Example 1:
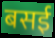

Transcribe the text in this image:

बसई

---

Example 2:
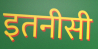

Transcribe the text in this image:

इतनीसी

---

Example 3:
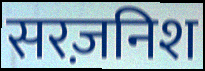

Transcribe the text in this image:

सरज़निश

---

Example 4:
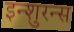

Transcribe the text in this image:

इन्शुरन्स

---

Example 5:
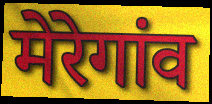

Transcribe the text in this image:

मेरेगांव